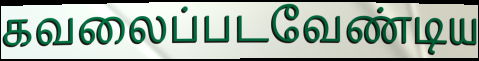
கவலைப்படவேண்டிய